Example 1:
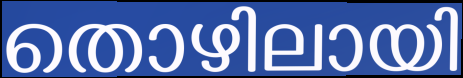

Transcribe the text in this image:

തൊഴിലായി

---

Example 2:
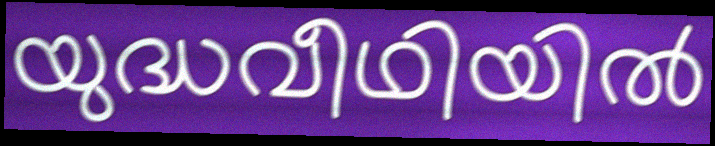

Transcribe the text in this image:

യുദ്ധവീഥിയിൽ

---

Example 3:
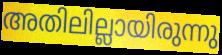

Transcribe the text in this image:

അതിലില്ലായിരുന്നു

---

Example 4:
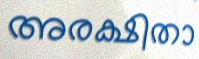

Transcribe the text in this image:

അരക്ഷിതാ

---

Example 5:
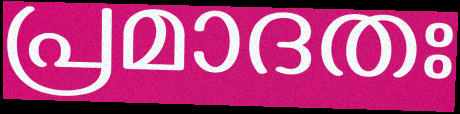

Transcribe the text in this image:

പ്രമാദതഃ